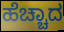
ಹೆಚ್ಚಾದ